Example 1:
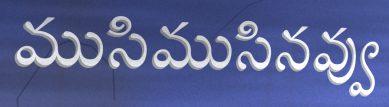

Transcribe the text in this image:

ముసిముసినవ్వు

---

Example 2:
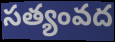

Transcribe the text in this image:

సత్యంవద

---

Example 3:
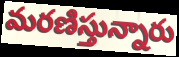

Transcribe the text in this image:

మరణిస్తున్నారు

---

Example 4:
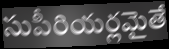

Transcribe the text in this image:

సుపీరియర్లమైతే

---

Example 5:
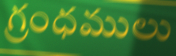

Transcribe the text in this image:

గ్రంధములు